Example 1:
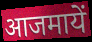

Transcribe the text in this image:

आजमायें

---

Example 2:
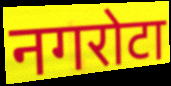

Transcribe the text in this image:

नगरोटा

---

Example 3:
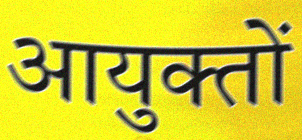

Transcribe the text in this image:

आयुक्तों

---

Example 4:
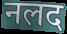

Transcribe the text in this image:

नलद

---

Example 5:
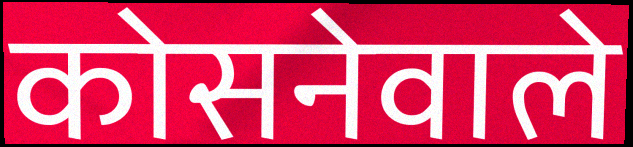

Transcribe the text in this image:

कोसनेवाले